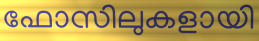
ഫോസിലുകളായി